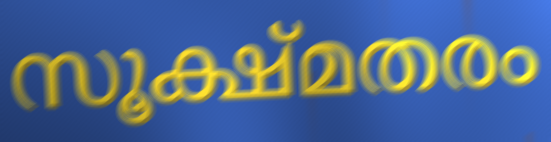
സൂക്ഷ്മതരം